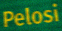
Pelosi